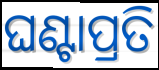
ଘଣ୍ଟାପ୍ରତି